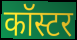
कॉस्टर